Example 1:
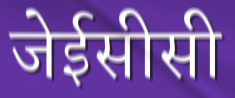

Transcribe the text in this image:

जेईसीसी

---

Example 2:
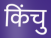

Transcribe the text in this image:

किंचु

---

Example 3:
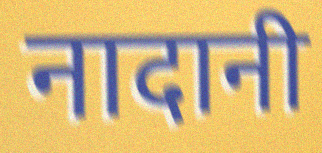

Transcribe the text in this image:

नादानी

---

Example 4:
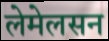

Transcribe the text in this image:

लेमेलसन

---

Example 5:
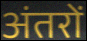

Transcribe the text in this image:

अंतरों